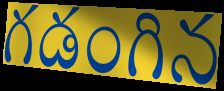
గడంగిన